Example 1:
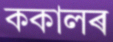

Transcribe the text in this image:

ককালৰ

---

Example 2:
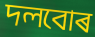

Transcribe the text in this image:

দলবোৰ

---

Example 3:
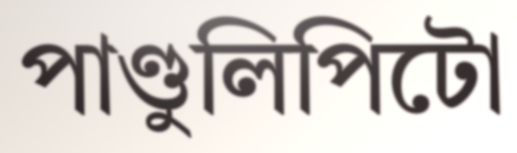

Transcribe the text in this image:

পাণ্ডুলিপিটো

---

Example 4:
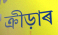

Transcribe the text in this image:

ক্ৰীড়াৰ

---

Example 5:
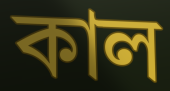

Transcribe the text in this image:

কাল